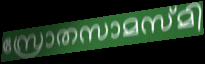
സ്രോതസാമസ്മി